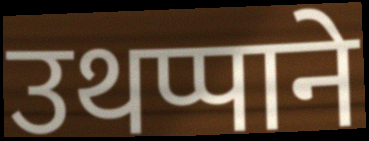
उथप्पाने